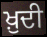
ਖ਼ੁਦੀ